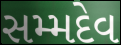
સમ્મદેવ